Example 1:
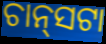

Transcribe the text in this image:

ଚାନ୍‌ସଟା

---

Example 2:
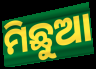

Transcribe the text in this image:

ମିଛୁଆ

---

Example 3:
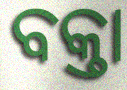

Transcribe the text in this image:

ବକ୍ତା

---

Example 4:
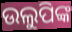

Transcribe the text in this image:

ଉଲୁପିଙ୍କ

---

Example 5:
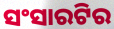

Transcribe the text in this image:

ସଂସାରଟିର